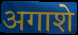
अगाशे